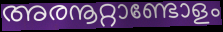
അരനൂറ്റാണ്ടോളം